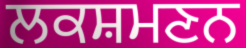
ਲਕਸ਼ਮਣਨ